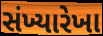
સંખ્યારેખા